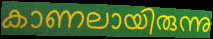
കാണലായിരുന്നു